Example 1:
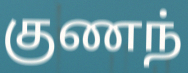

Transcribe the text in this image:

குணந்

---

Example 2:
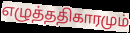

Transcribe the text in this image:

எழுத்ததிகாரமும்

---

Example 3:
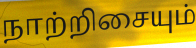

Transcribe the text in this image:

நாற்றிசையும்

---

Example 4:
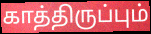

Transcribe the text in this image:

காத்திருப்பும்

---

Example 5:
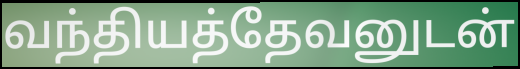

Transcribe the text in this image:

வந்தியத்தேவனுடன்